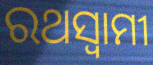
ରଥସ୍ୱାମୀ